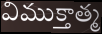
విముక్తాత్మ